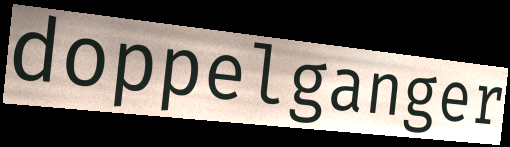
doppelganger